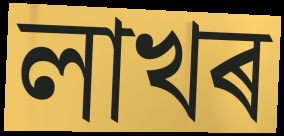
লাখৰ